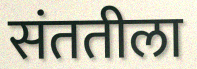
संततीला